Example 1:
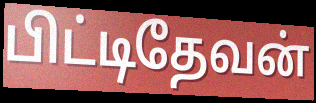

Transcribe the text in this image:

பிட்டிதேவன்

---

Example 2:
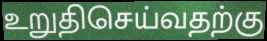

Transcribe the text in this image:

உறுதிசெய்வதற்கு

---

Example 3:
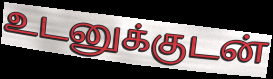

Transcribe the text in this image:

உடனுக்குடன்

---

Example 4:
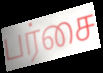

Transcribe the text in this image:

பர்சை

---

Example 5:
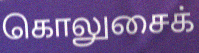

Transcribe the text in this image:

கொலுசைக்